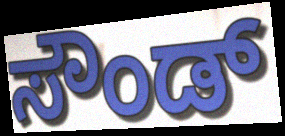
ಸೌಂಡ್